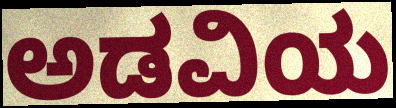
ಅಡವಿಯ